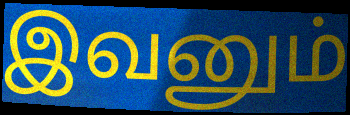
இவனும்